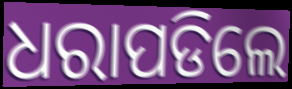
ଧରାପଡିଲେ